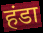
हंडा